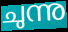
ചുന്നു